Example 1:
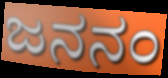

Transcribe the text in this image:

ಜನನಂ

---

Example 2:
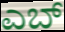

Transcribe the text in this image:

ಎಬ್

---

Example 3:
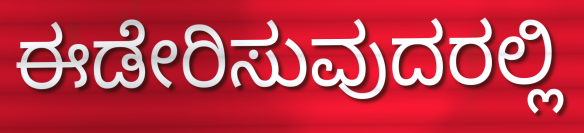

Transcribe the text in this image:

ಈಡೇರಿಸುವುದರಲ್ಲಿ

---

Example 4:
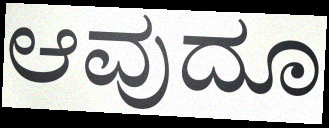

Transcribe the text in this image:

ಆವುದೂ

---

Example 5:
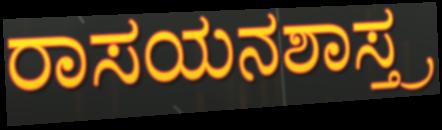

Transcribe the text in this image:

ರಾಸಯನಶಾಸ್ತ್ರ